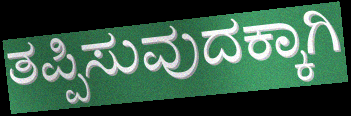
ತಪ್ಪಿಸುವುದಕ್ಕಾಗಿ